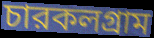
চারকলগ্রাম